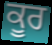
ਕੂਰ